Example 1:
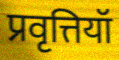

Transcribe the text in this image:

प्रवृत्तियॉ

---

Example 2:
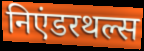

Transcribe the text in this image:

निएंडरथल्स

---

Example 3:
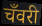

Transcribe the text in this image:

चँवरी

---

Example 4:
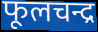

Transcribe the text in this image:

फूलचन्द्र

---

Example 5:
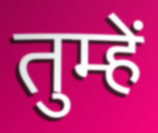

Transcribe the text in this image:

तुम्हें